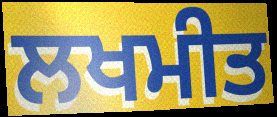
ਲਖਮੀਤ